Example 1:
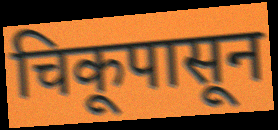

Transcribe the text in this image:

चिकूपासून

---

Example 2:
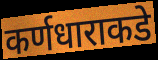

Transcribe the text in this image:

कर्णधाराकडे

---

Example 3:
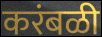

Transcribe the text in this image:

करंबळी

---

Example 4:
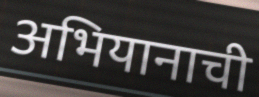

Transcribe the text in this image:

अभियानाची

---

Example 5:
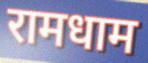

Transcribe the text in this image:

रामधाम